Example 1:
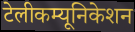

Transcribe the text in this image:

टेलीकम्यूनिकेशन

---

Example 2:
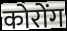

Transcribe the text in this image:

कोरोंग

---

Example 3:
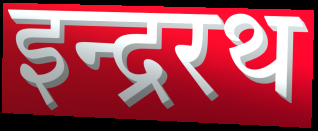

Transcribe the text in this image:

इन्द्ररथ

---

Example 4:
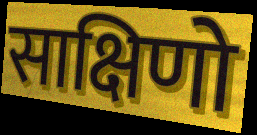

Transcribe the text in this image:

साक्षिणो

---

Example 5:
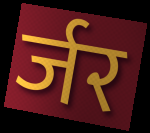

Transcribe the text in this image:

र्जर